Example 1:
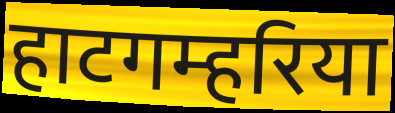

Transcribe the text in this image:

हाटगम्हरिया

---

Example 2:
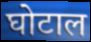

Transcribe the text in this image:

घोटाल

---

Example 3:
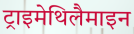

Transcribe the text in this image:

ट्राइमेथिलैमाइन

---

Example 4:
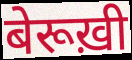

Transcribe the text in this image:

बेरूख़ी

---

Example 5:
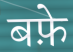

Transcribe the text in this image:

बफ़े